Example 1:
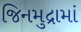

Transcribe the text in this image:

જિનમુદ્રામાં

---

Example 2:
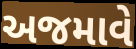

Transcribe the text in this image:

અજમાવે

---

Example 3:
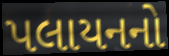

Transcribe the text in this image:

પલાયનનો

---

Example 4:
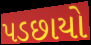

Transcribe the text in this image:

પડછાયો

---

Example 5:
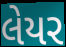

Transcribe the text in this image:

લેયર